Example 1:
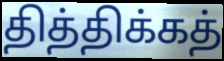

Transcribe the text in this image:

தித்திக்கத்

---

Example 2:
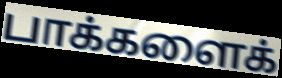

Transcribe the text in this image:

பாக்களைக்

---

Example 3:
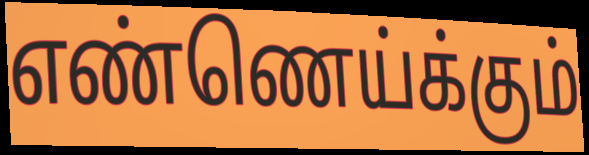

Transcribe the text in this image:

எண்ணெய்க்கும்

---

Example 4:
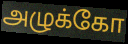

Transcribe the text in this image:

அழுக்கோ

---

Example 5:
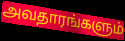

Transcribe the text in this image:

அவதாரங்களும்